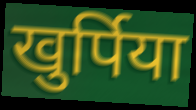
खुर्पिया